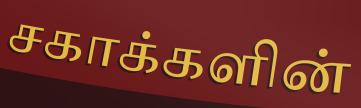
சகாக்களின்